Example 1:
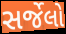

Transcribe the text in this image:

સર્જેલો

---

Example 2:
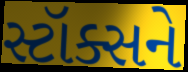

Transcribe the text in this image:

સ્ટૉક્સને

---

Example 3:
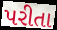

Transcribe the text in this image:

પરીતા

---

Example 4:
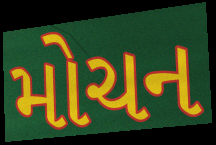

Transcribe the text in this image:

મોચન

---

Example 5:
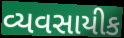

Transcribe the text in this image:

વ્યવસાયીક